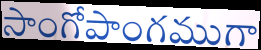
సాంగోపాంగముగా